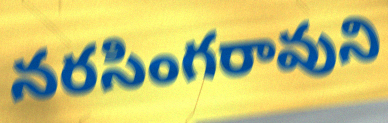
నరసింగరావుని